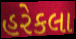
હરેકલા